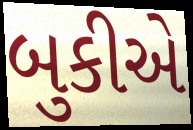
બુકીએ